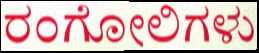
ರಂಗೋಲಿಗಳು